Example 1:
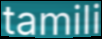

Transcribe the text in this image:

tamili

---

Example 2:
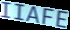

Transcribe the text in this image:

IIAFE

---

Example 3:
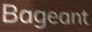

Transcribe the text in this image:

Bageant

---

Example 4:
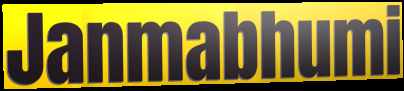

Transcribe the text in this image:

Janmabhumi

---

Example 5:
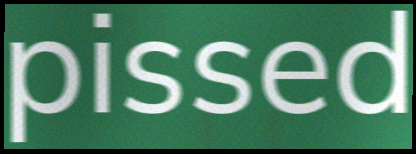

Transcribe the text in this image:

pissed